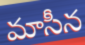
మాసీన